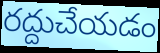
రద్దుచేయడం